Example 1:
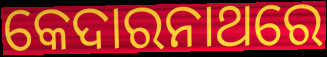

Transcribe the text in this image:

କେଦାରନାଥରେ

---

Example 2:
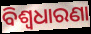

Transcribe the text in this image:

ବିଶ୍ୱଧାରଣା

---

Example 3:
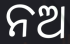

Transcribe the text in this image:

ନଅ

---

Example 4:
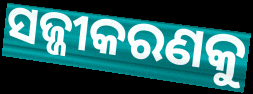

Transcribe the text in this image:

ସଜ୍ଜୀକରଣକୁ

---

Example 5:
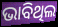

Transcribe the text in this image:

ଭାବିଥିଲ